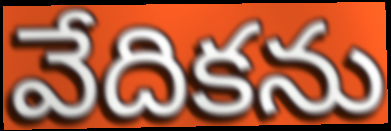
వేదికను